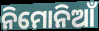
ନିମୋନିଆଁ